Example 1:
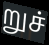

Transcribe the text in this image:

றுச்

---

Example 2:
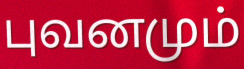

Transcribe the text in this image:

புவனமும்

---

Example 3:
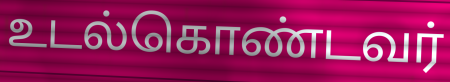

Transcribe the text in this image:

உடல்கொண்டவர்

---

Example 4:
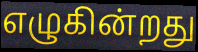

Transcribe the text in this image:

எழுகின்றது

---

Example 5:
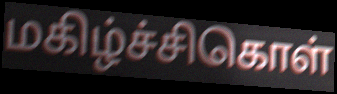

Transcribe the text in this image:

மகிழ்ச்சிகொள்